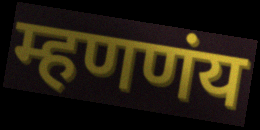
म्हणणंय